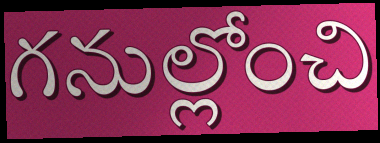
గనుల్లోంచి